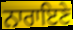
ਨਾਰਾਇਣੇ